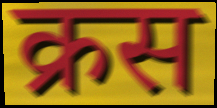
क्रस